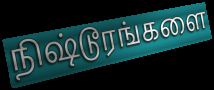
நிஷ்டூரங்களை